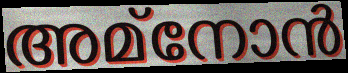
അമ്നോൻ